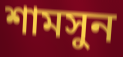
শামসুন